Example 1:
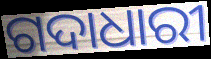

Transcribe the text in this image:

ଗଦାଧାରୀ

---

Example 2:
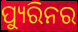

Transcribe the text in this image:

ପ୍ୟୁରିନର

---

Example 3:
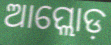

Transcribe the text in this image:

ଆପ୍ଲୋଡ଼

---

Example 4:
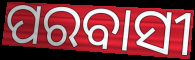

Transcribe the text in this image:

ପରବାସୀ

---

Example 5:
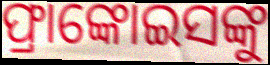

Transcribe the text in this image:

ଫ୍ରାଙ୍କୋଇସଙ୍କୁ